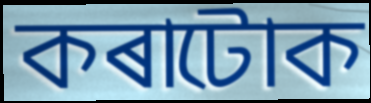
কৰাটোক